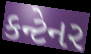
કન્ટેનર